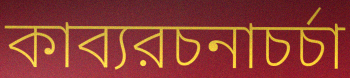
কাব্যরচনাচর্চা